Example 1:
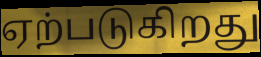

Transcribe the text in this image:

ஏற்படுகிறது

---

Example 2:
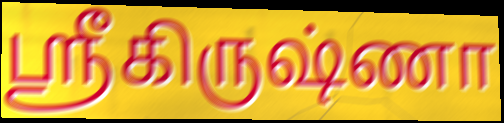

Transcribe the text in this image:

ஸ்ரீகிருஷ்ணா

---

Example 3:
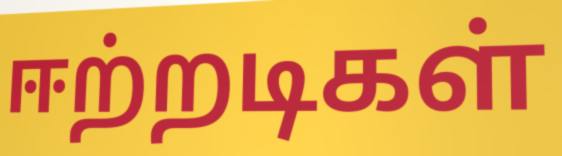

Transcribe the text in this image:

ஈற்றடிகள்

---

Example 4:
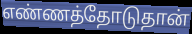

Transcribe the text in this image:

எண்ணத்தோடுதான்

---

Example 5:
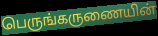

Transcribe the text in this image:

பெருங்கருணையின்